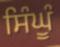
ਸਿੰਘੂੰ